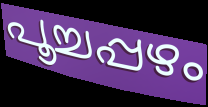
പൂച്ചപ്പഴം